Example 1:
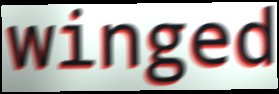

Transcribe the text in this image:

winged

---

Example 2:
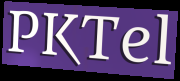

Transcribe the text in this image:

PKTel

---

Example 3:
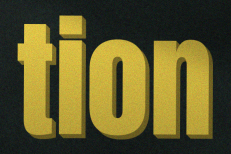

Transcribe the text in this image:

tion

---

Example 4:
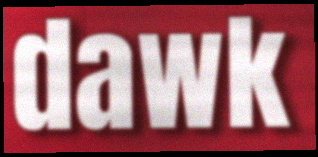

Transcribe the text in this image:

dawk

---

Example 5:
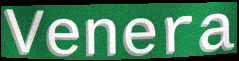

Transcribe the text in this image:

Venera